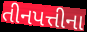
તીનપત્તીના